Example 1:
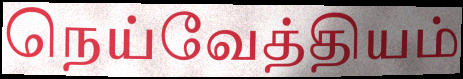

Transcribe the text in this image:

நெய்வேத்தியம்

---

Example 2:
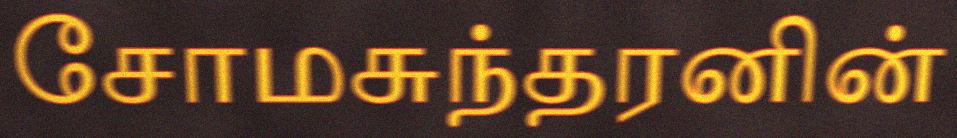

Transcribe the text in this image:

சோமசுந்தரனின்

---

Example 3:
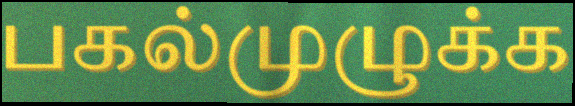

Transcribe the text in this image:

பகல்முழுக்க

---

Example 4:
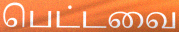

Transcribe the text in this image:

பெட்டவை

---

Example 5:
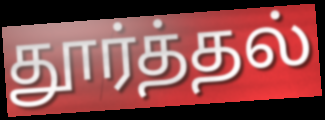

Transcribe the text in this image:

தூர்த்தல்